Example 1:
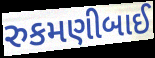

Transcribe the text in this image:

રુકમણીબાઈ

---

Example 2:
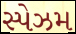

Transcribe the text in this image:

સ્પેઝમ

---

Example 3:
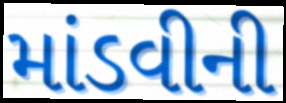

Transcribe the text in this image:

માંડવીની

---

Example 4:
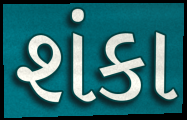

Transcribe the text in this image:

શંકા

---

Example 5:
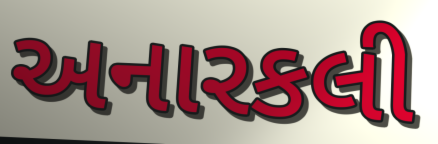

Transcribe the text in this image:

અનારકલી